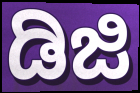
ಡಿಜಿ